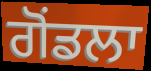
ਗੋਂਡਲਾ